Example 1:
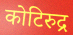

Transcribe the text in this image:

कोटिरुद्र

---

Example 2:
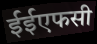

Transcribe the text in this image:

ईईएफसी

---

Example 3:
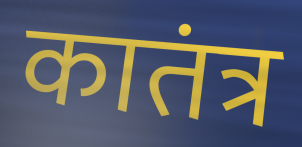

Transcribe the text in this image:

कातंत्र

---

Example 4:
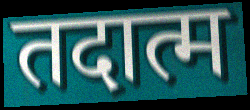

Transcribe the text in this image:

तदात्म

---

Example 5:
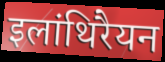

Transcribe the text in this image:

इलांथिरैयन